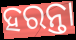
ହରନ୍ତା